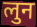
लुन